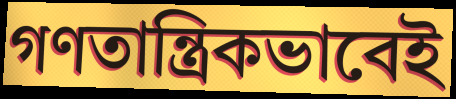
গণতান্ত্রিকভাবেই